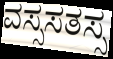
ವಸ್ಸಸತಸ್ಸ